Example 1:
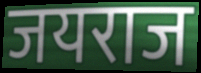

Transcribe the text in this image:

जयराज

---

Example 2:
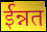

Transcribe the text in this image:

ईन्नत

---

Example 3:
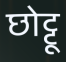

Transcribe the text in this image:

छोट्टू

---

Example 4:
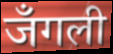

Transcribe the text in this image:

जँगली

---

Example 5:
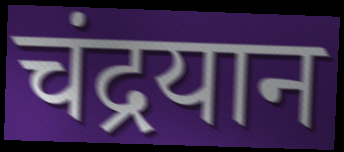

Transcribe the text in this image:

चंद्रयान